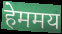
हेममय